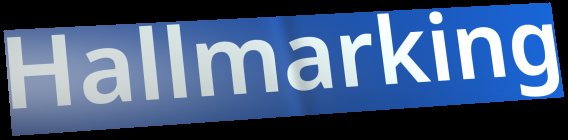
Hallmarking